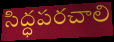
సిద్ధపరచాలి